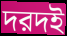
দরদই